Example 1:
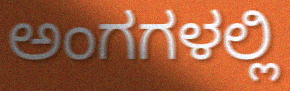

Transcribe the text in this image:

ಅಂಗಗಳಲ್ಲಿ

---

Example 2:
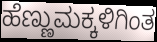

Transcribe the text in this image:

ಹೆಣ್ಣುಮಕ್ಕಳಿಗಿಂತ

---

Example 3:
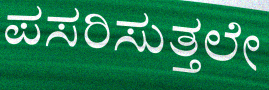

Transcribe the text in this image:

ಪಸರಿಸುತ್ತಲೇ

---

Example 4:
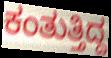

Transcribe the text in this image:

ಕಂತುತ್ತಿದ್ದ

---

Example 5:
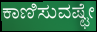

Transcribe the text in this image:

ಕಾಣಿಸುವಷ್ಟೇ